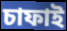
চাফাই